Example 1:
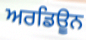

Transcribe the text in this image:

ਅਰਡਿਊਨ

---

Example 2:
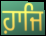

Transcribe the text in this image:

ਹ਼ਾਜਿ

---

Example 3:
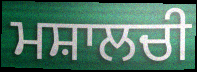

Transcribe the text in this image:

ਮਸ਼ਾਲਚੀ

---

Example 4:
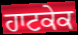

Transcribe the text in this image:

ਹਾਟਕੇਕ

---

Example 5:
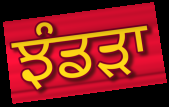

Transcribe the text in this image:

ਝੰਡੜਾ